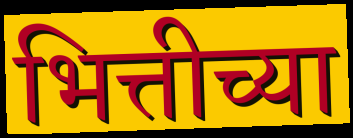
भित्तीच्या